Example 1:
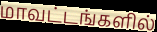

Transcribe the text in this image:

மாவட்டங்களில்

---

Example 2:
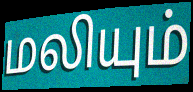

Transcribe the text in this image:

மலியும்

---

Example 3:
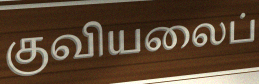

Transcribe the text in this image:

குவியலைப்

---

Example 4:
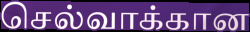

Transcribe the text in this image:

செல்வாக்கான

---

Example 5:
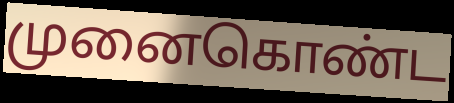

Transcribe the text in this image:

முனைகொண்ட